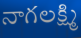
నాగలక్ష్మి